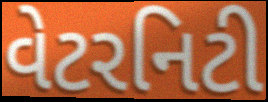
વેટરનિટી